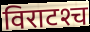
विराटश्च